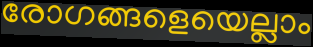
രോഗങ്ങളെയെല്ലാം